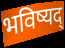
भविष्यद्